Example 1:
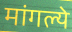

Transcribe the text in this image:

मांगल्ये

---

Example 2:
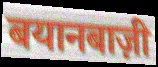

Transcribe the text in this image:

बयानबाज़ी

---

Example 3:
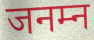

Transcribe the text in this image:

जनम्न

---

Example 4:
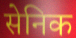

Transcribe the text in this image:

सेनिक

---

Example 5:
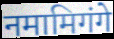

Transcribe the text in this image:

नमामिगंगे